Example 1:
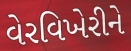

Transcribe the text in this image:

વેરવિખેરીને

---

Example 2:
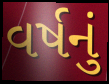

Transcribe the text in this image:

વર્ષનું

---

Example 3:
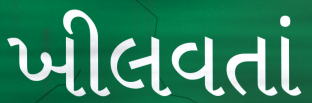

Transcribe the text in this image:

ખીલવતાં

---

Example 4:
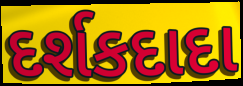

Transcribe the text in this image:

દર્શકદાદા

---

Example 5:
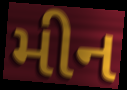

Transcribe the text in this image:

મીન